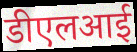
डीएलआई